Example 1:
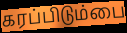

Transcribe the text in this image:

கரப்பிடும்பை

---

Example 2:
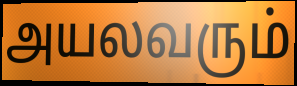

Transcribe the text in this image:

அயலவரும்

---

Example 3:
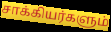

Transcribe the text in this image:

சாக்கியர்களும்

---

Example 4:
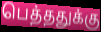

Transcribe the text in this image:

பெத்ததுக்கு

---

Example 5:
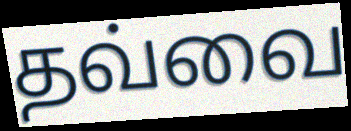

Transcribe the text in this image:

தவ்வை